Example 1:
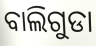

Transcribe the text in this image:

ବାଲିଗୁଡା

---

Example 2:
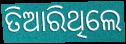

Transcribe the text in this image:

ତିଆରିଥିଲେ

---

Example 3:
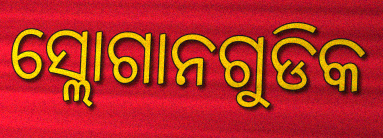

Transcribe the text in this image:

ସ୍ଲୋଗାନଗୁଡିକ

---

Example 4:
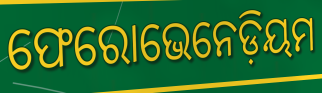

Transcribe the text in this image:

ଫେରୋଭେନେଡ଼ିୟମ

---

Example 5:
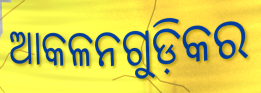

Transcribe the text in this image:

ଆକଳନଗୁଡ଼ିକର